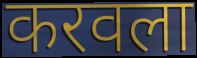
करवला